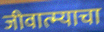
जीवात्म्याचा